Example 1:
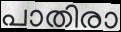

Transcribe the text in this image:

പാതിരാ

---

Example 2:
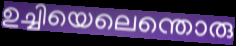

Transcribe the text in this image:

ഉച്ചിയെലെന്തൊരു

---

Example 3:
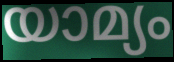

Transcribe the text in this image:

യാമ്യം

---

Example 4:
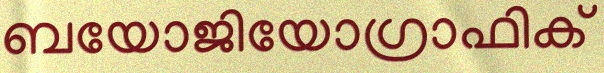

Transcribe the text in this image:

ബയോജിയോഗ്രാഫിക്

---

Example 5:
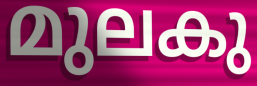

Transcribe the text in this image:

മുലകു